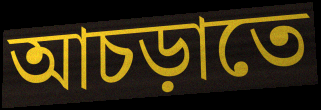
আচড়াতে